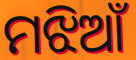
ମଝିଆଁ